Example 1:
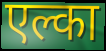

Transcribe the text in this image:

एल्का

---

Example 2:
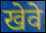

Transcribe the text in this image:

खेवे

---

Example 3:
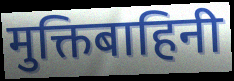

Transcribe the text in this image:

मुक्तिबाहिनी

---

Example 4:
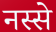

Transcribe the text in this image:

नस्से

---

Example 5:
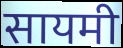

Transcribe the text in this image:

सायमी